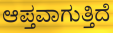
ಆಪ್ತವಾಗುತ್ತಿದೆ